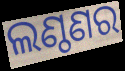
ଲଣ୍ଠଣର